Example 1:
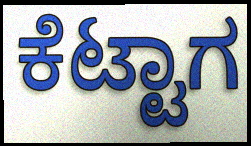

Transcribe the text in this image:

ಕೆಟ್ಟಾಗ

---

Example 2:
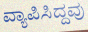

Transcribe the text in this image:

ವ್ಯಾಪಿಸಿದ್ದವು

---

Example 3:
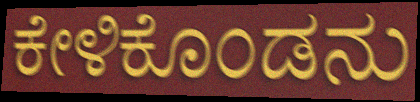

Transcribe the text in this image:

ಕೇಳಿಕೊಂಡನು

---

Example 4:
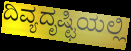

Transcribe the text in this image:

ದಿವ್ಯದೃಷ್ಟಿಯಲ್ಲಿ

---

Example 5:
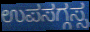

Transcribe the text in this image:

ಉಪಸಗ್ಗಸ್ಸ